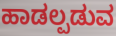
ಹಾಡಲ್ಪಡುವ